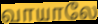
வாயாலே